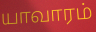
யாவாரம்